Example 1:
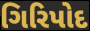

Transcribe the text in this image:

ગિરિપોદ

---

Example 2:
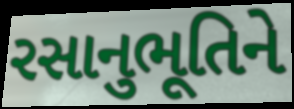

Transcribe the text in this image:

રસાનુભૂતિને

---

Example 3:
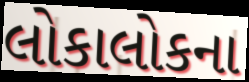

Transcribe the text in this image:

લોકાલોકના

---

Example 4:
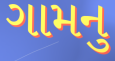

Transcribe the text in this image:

ગામનુ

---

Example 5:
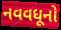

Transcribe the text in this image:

નવવધૂનો